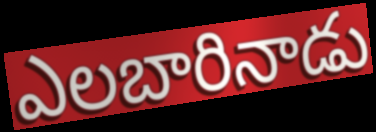
ఎలబారినాడు